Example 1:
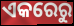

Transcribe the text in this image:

ଏକରେରୁ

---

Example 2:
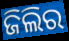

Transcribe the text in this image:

ଜିଲିର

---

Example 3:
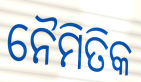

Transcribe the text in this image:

ନୈମିତିକ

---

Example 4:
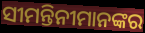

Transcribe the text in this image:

ସୀମନ୍ତିନୀମାନଙ୍କର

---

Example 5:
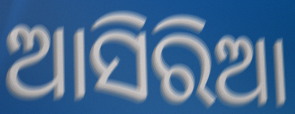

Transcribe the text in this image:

ଆସିରିଆ